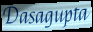
Dasagupta